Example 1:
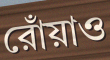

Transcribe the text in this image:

রোঁয়াও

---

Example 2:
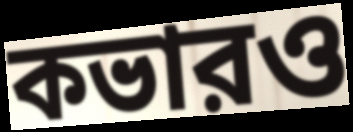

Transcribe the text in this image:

কভারও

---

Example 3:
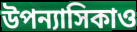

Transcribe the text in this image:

উপন্যাসিকাও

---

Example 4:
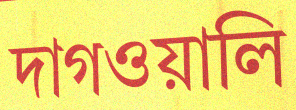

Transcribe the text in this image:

দাগওয়ালি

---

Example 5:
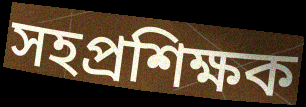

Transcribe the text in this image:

সহপ্রশিক্ষক